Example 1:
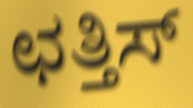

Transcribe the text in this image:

ಛತ್ತಿಸ್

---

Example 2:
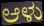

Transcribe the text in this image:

ಆಳು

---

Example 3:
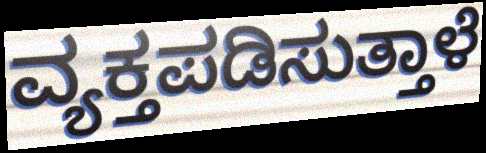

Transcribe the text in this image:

ವ್ಯಕ್ತಪಡಿಸುತ್ತಾಳೆ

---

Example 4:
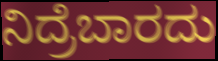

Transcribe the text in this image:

ನಿದ್ರೆಬಾರದು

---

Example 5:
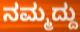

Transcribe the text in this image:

ನಮ್ಮದ್ದು